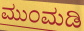
ಮುಂಮಡಿ